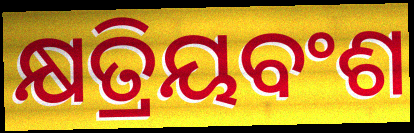
କ୍ଷତ୍ରିୟବଂଶ